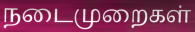
நடைமுறைகள்